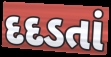
દદડતાં